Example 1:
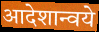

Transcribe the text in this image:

आदेशान्वये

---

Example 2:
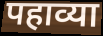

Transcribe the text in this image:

पहाव्या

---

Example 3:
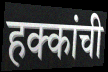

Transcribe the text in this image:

हक्कांची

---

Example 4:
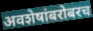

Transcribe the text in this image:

अवशेषांबरोबरच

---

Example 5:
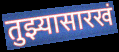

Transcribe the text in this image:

तुझ्यासारखं